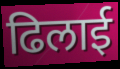
ढिलाई